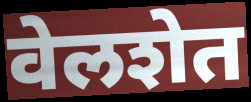
वेलशेत